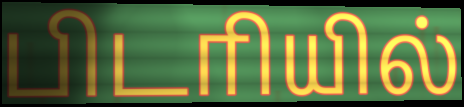
பிடரியில்